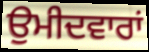
ਉਮੀਦਵਾਰਾਂ